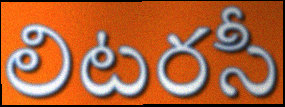
లిటరసీ